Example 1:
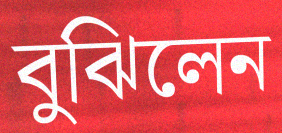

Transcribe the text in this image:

বুঝিলেন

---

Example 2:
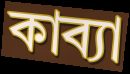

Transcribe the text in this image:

কাব্যা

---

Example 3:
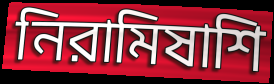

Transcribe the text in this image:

নিরামিষাশি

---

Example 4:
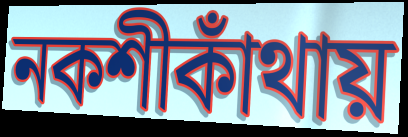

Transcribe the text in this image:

নকশীকাঁথায়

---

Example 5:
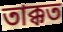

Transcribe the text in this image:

তাক্কত